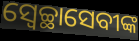
ସ୍ୱେଚ୍ଛାସେବୀଙ୍କ